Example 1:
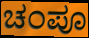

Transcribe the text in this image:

ಚಂಪೂ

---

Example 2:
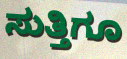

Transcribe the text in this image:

ಸುತ್ತಿಗೂ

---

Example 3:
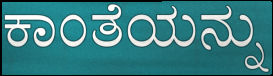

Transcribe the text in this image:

ಕಾಂತೆಯನ್ನು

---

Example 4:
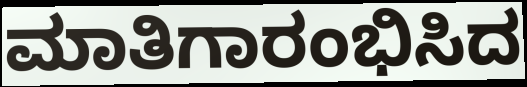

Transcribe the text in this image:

ಮಾತಿಗಾರಂಭಿಸಿದ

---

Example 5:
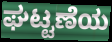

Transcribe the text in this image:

ಘಟ್ಟಣೆಯ